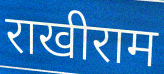
राखीराम